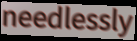
needlessly